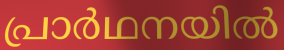
പ്രാർഥനയിൽ